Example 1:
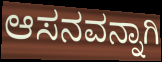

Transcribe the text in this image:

ಆಸನವನ್ನಾಗಿ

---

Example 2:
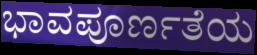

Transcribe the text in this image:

ಭಾವಪೂರ್ಣತೆಯ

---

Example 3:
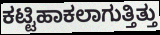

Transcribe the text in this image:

ಕಟ್ಟಿಹಾಕಲಾಗುತ್ತಿತ್ತು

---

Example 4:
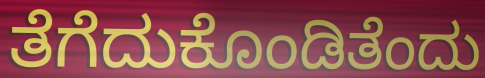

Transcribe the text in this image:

ತೆಗೆದುಕೊಂಡಿತೆಂದು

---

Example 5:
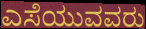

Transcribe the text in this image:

ಎಸೆಯುವವರು